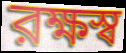
রক্ষস্ব